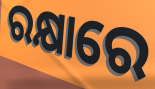
ରକ୍ଷାରେ